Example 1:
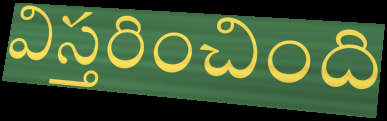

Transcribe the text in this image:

విస్తరించింది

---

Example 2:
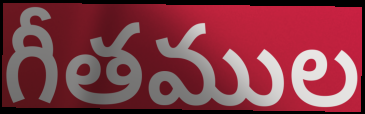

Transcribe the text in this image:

గీతముల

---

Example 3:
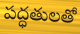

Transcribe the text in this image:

పద్ధతులతో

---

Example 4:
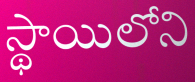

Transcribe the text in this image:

స్థాయిలోని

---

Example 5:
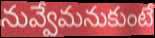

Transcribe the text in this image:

నువ్వేమనుకుంటే